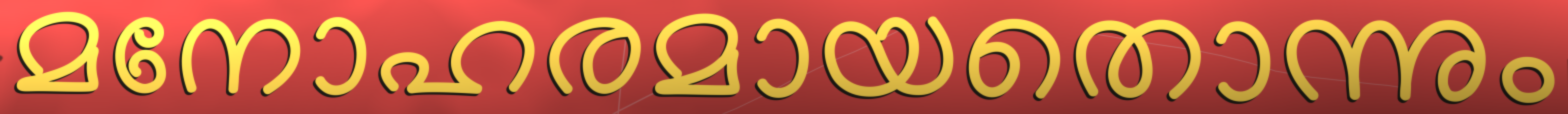
മനോഹരമായതൊന്നും